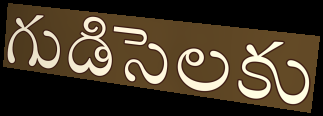
గుడిసెలకు